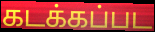
கடக்கப்பட